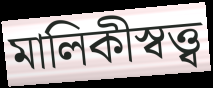
মালিকীস্বত্ত্ব